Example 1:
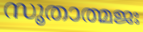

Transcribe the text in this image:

സൂതാത്മജഃ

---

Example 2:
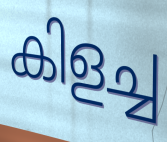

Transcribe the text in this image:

കിളച്ച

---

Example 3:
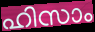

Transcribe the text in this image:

ഹിസാം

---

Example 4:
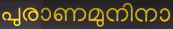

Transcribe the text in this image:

പുരാണമുനിനാ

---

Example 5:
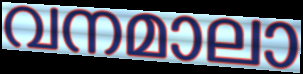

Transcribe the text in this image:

വനമാലാ